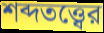
শব্দতত্ত্বের